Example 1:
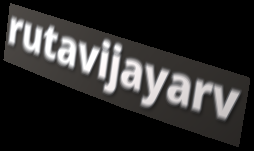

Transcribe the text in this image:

rutavijayarv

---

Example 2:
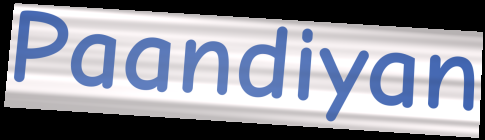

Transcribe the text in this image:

Paandiyan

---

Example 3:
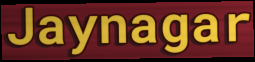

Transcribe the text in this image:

Jaynagar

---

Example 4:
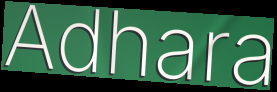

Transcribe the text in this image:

Adhara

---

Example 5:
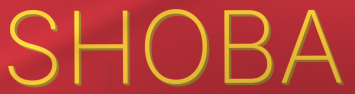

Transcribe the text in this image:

SHOBA